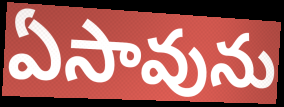
ఏసావును